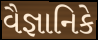
વૈજ્ઞાનિકે